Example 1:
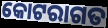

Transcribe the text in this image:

କୋଟରାଗତ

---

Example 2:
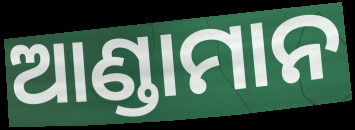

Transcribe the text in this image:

ଆଣ୍ଡାମାନ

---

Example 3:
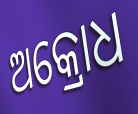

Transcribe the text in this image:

ଅକ୍ରୋଧ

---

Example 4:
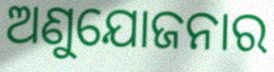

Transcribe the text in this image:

ଅଣୁଯୋଜନାର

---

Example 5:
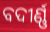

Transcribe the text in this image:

ବଦୀର୍ଣ୍ଣ